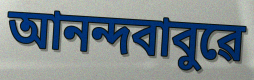
আনন্দবাবুৱে